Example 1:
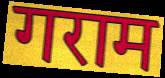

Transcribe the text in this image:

गराम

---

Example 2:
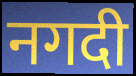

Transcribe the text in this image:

नगदी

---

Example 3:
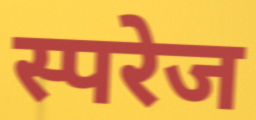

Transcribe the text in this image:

स्परेज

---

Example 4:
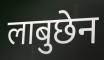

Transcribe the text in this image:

लाबुछेन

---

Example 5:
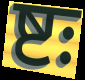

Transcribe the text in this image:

ष्टः